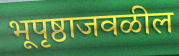
भूपृष्ठाजवळील